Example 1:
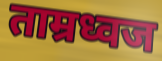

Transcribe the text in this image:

ताम्रध्वज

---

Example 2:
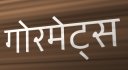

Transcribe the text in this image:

गोरमेट्स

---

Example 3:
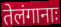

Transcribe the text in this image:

तेलंगानाः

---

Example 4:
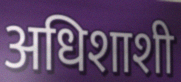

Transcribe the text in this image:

अधिशाशी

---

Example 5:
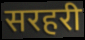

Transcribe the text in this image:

सरहरी